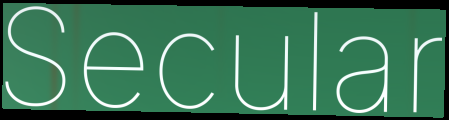
Secular